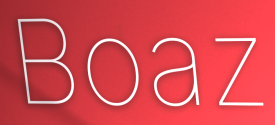
Boaz